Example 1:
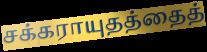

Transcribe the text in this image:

சக்கராயுதத்தைத்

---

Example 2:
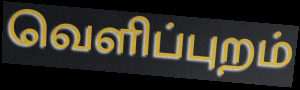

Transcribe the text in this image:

வெளிப்புறம்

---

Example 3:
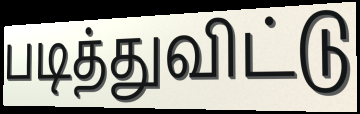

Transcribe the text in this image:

படித்துவிட்டு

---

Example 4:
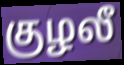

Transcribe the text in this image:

குழலீ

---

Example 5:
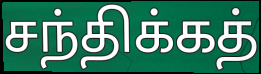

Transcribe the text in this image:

சந்திக்கத்